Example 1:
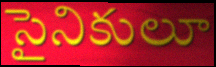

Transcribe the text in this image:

సైనికులూ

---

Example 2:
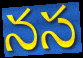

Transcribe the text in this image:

నస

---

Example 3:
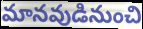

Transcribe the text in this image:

మానవుడినుంచి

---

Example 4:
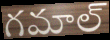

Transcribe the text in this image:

గమాల్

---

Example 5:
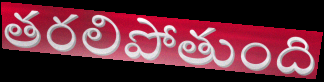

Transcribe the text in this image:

తరలిపోతుంది